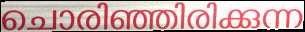
ചൊരിഞ്ഞിരിക്കുന്ന